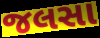
જલસા